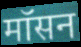
मॉसन